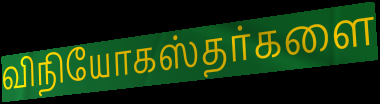
விநியோகஸ்தர்களை